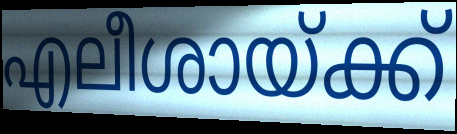
എലീശായ്ക്ക്